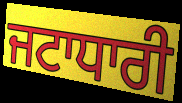
ਜਟਾਧਾਰੀ